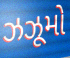
ઝઝૂમો